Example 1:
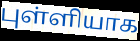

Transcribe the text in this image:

புள்ளியாக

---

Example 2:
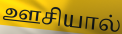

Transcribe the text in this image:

ஊசியால்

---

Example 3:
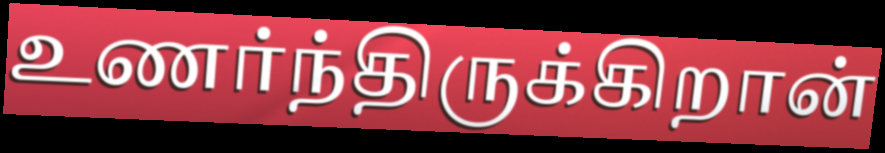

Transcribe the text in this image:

உணர்ந்திருக்கிறான்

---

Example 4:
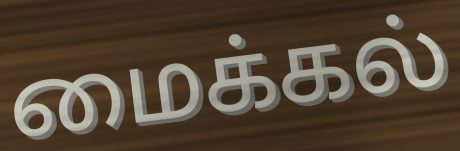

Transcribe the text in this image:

மைக்கல்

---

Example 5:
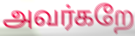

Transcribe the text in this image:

அவர்கறே